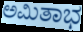
ಅಮಿತಾಭ